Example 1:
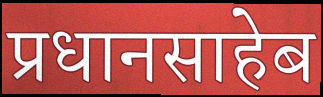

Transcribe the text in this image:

प्रधानसाहेब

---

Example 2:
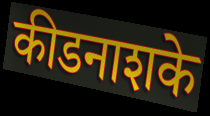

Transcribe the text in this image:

कीडनाशके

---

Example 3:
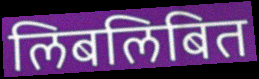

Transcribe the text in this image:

लिबलिबित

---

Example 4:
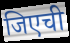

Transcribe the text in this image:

जिएची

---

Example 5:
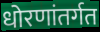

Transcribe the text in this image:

धोरणांतर्गत